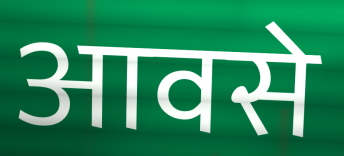
आवसे